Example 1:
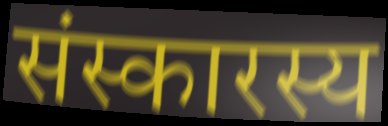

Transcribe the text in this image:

संस्कारस्य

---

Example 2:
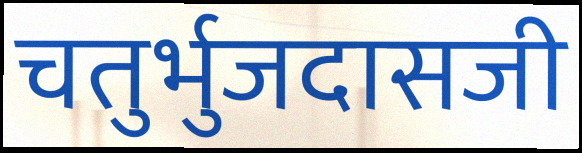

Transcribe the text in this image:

चतुर्भुजदासजी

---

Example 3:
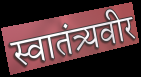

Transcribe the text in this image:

स्वातंत्र्यवीर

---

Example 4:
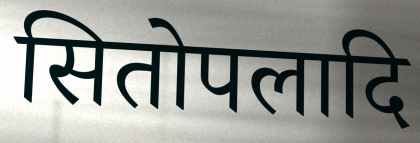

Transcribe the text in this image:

सितोपलादि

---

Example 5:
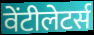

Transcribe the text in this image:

वेंटीलेटर्स